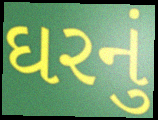
ઘરનું